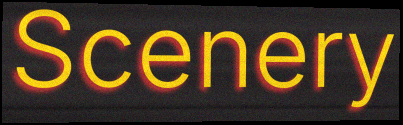
Scenery